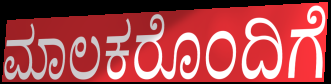
ಮಾಲಕರೊಂದಿಗೆ